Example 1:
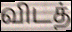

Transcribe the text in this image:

விடத்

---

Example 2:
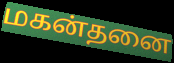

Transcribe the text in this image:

மகன்தனை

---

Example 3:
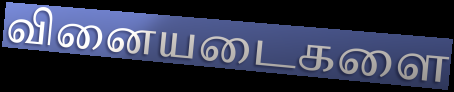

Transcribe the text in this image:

வினையடைகளை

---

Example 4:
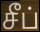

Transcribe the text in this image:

சீப்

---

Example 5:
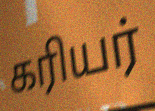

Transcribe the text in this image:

கரியர்